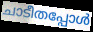
ചാടീതപ്പോൾ